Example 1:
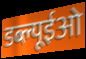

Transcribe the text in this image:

डब्ल्यूईओ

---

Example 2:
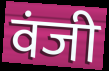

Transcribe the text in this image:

वंजी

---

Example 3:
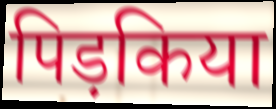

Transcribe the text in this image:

पिड़किया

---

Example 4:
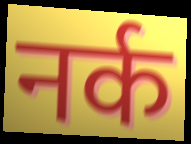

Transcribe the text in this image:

नर्क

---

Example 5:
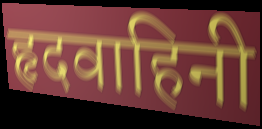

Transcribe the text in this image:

हृदवाहिनी